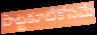
పొట్టకూటికోసమే